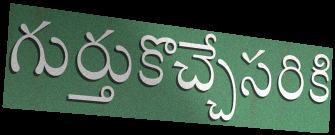
గుర్తుకొచ్చేసరికి